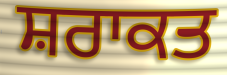
ਸ਼ਰਾਕਤ